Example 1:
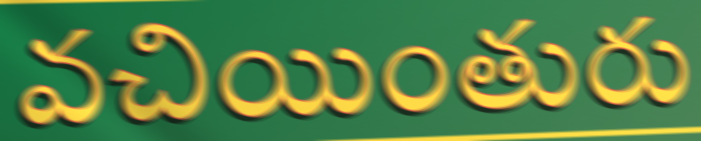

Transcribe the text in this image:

వచియింతురు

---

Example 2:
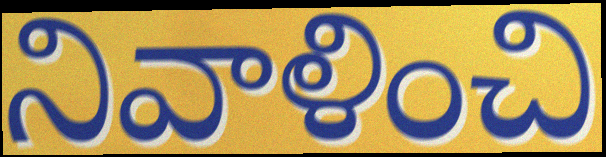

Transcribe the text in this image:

నివాళించి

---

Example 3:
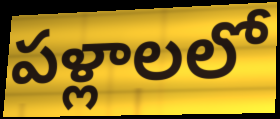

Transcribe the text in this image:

పళ్లాలలో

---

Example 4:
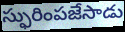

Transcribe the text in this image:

స్ఫురింపజేసాడు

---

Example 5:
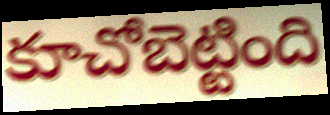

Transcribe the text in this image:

కూచోబెట్టింది